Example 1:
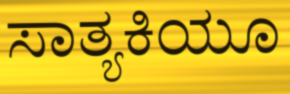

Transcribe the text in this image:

ಸಾತ್ಯಕಿಯೂ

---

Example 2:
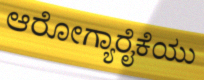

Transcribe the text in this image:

ಆರೋಗ್ಯಾರೈಕೆಯು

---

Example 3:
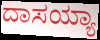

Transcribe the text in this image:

ದಾಸಯ್ಯಾ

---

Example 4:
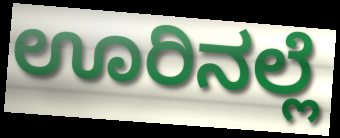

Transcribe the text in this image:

ಊರಿನಲ್ಲೆ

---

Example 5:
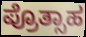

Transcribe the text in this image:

ಪ್ರೊತ್ಸಾಹ